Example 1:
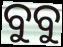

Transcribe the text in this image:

ବୁବୁ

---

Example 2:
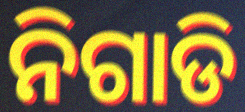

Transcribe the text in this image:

ନିଗାଡି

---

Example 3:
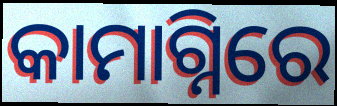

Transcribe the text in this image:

କାମାଗ୍ନିରେ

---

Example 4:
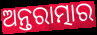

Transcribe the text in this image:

ଅନ୍ତରାତ୍ମାର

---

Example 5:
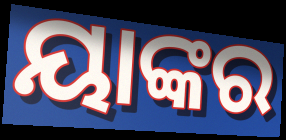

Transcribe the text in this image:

ୟାଙ୍କର